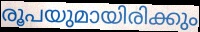
രൂപയുമായിരിക്കും